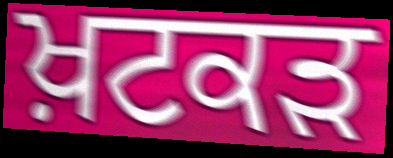
ਖ਼ਟਕੜ